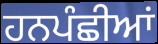
ਹਨਪੰਛੀਆਂ